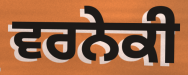
ਵਰਨੇਕੀ